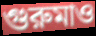
গুরুমাও